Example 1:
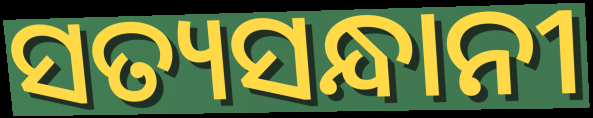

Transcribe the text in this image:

ସତ୍ୟସନ୍ଧାନୀ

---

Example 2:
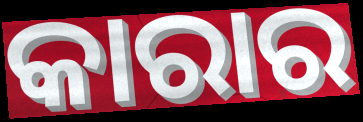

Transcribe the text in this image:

କାରାର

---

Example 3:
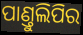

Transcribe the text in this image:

ପାଣ୍ତୁଲିପିର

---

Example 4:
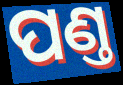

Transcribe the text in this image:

ପଣ୍ତ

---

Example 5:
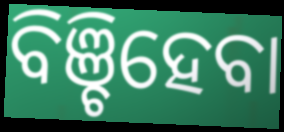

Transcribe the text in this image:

ବିଞ୍ଚିହେବା